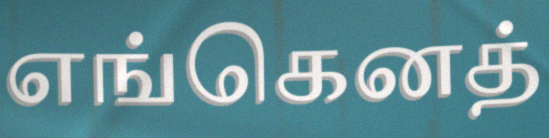
எங்கெனத்